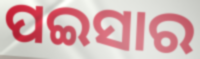
ପଇସାର